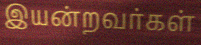
இயன்றவர்கள்